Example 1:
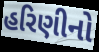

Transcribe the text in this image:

હરિણીનો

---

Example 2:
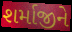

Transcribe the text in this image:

શર્માજીને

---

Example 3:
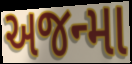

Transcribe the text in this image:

અજન્મા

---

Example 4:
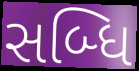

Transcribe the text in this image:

સબ્ધિ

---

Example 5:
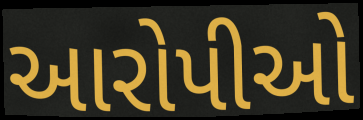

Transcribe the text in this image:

આરોપીઓ